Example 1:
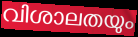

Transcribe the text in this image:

വിശാലതയും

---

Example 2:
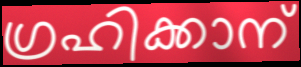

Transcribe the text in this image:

ഗ്രഹിക്കാന്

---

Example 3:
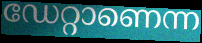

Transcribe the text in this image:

ഡേറ്റാണെന്ന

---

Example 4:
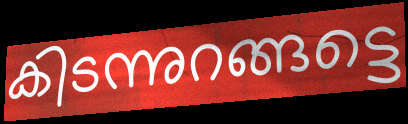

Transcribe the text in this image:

കിടന്നുറങ്ങട്ടെ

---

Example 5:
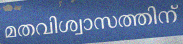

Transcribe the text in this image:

മതവിശ്വാസത്തിന്